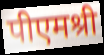
पीएमश्री